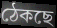
ঠেকছে